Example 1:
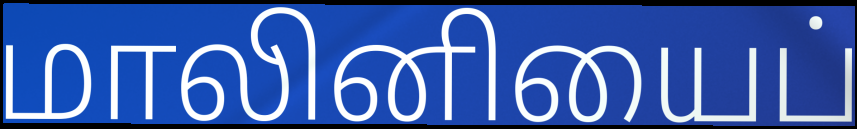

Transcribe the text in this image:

மாலினியைப்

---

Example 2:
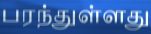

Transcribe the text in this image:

பரந்துள்ளது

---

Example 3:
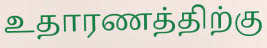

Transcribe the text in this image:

உதாரணத்திற்கு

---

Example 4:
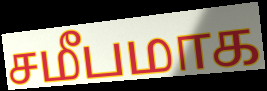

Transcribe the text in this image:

சமீபமாக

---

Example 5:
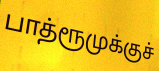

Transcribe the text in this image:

பாத்ரூமுக்குச்